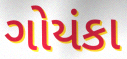
ગોયંકા